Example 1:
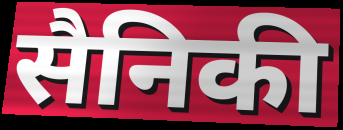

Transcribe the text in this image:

सैनिकी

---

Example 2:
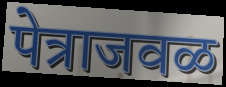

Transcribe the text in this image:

पेत्राजवळ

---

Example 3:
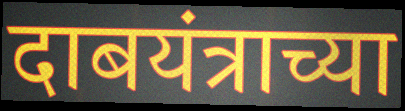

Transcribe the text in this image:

दाबयंत्राच्या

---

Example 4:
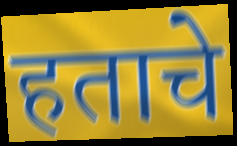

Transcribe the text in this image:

हताचे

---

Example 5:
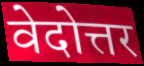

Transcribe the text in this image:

वेदोत्तर